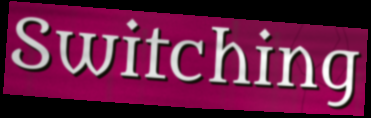
Switching